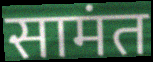
सामंत